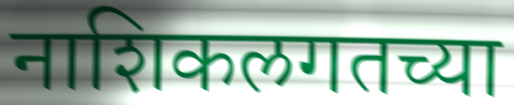
नाशिकलगतच्या